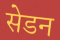
सेडन